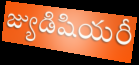
జ్యుడిషియరీ